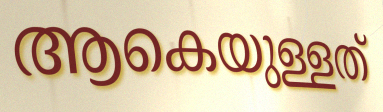
ആകെയുള്ളത്